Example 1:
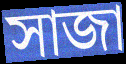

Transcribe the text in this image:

সাজা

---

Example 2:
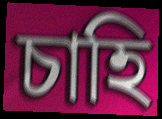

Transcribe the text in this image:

চাহি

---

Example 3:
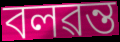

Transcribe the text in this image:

বলৱন্ত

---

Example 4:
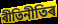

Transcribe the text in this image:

ৰীতিনীতিৰ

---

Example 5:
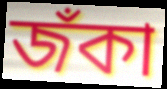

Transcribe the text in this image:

জঁকা